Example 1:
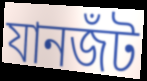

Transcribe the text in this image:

যানজঁট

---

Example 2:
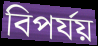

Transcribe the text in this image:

বিপৰ্যয়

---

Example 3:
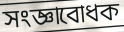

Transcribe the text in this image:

সংজ্ঞাবোধক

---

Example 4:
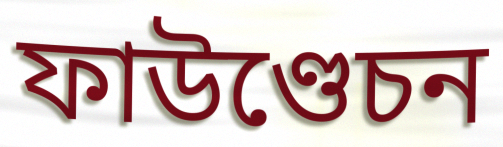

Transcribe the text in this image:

ফাউণ্ডেচন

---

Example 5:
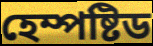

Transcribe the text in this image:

হেম্পষ্টিড